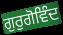
ਗੁਰੁਗੋਵਿੰਦ